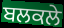
ਬਲਕਲੇ